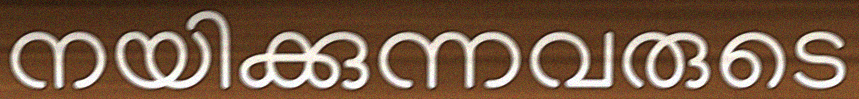
നയിക്കുന്നവരുടെ